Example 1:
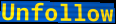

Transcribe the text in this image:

Unfollow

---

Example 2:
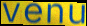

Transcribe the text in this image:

venu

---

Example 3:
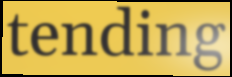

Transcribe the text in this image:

tending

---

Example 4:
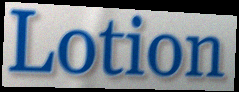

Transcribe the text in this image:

Lotion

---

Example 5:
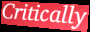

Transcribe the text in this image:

Critically